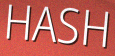
HASH